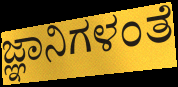
ಜ್ಞಾನಿಗಳಂತೆ